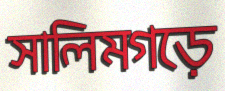
সালিমগড়ে